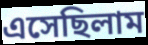
এসেছিলাম